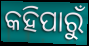
କହିପାରୁଁ